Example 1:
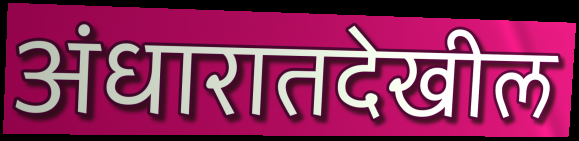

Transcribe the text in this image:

अंधारातदेखील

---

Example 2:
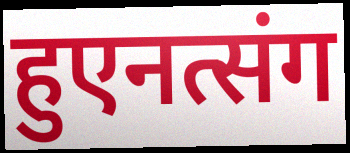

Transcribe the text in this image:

हुएनत्संग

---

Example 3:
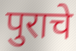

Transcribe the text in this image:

पुराचे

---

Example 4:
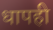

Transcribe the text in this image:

धापही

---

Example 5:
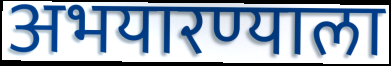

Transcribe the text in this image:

अभयारण्याला